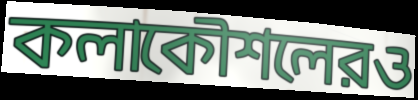
কলাকৌশলেরও